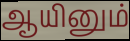
ஆயினும்